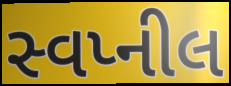
સ્વપ્નીલ